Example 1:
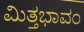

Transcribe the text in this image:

ಮಿತ್ತಭಾವಂ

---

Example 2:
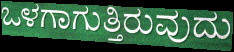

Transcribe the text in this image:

ಒಳಗಾಗುತ್ತಿರುವುದು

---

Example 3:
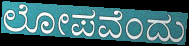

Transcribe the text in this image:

ಲೋಪವೆಂದು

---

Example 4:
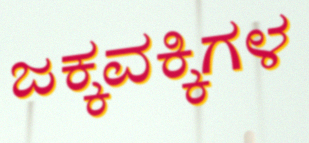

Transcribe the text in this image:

ಜಕ್ಕವಕ್ಕಿಗಳ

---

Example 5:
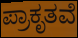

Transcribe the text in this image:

ಪ್ರಾಕೃತವೆ